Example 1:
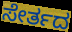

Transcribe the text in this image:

ಸೇರ್ತದ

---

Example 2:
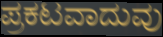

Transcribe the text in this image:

ಪ್ರಕಟವಾದುವು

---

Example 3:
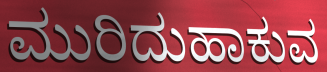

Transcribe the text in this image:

ಮುರಿದುಹಾಕುವ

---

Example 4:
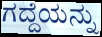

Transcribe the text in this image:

ಗದ್ದೆಯನ್ನು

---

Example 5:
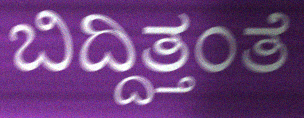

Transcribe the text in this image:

ಬಿದ್ದಿತ್ತಂತೆ